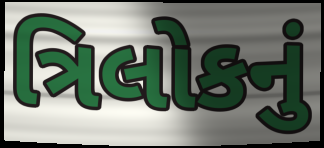
ત્રિલોકનું